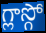
గ్లాస్గో